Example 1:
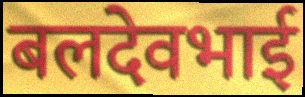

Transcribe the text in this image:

बलदेवभाई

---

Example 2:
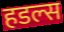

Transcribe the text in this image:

हडल्स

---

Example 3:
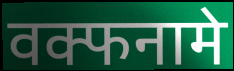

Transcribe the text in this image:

वक्फनामे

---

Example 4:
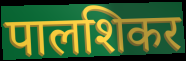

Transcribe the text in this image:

पालशिकर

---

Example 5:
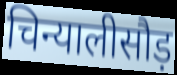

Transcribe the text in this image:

चिन्यालीसौड़